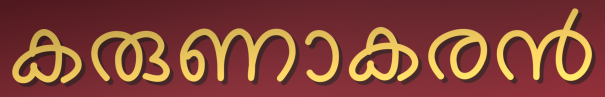
കരുണാകരൻ